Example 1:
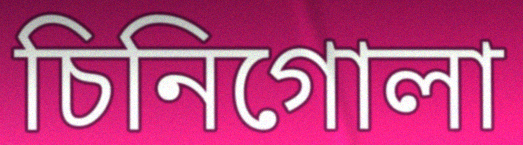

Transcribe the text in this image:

চিনিগোলা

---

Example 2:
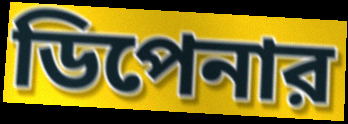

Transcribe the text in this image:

ডিপেনার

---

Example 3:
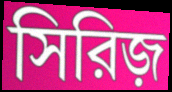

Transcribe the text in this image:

সিরিজ়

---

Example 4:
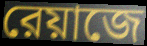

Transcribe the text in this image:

রেয়াজে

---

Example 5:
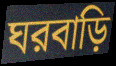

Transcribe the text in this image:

ঘরবাড়ি